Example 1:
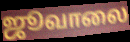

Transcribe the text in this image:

ஜூவாலை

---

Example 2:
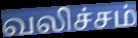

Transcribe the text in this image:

வலிச்சம்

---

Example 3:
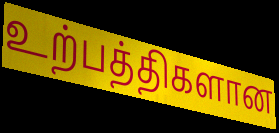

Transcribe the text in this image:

உற்பத்திகளான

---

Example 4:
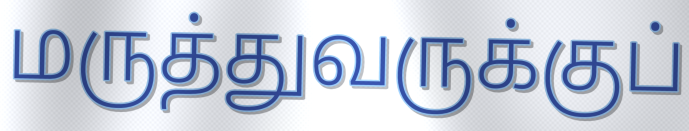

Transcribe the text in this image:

மருத்துவருக்குப்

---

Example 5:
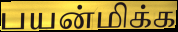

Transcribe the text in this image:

பயன்மிக்க